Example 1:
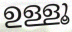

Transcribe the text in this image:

ഉള്ളൂ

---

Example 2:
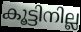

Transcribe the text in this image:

കൂട്ടിനില്ല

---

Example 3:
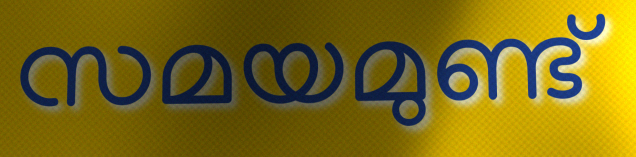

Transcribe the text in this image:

സമയമുണ്ട്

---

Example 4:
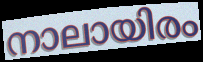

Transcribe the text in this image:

നാലായിരം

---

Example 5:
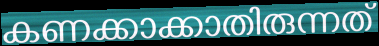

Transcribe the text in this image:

കണക്കാക്കാതിരുന്നത്